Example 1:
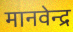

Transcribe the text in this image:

मानवेन्द्र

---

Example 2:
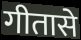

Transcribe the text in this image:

गीतासे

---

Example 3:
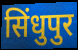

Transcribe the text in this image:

सिंधुपुर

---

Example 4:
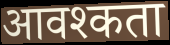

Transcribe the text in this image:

आवश्कता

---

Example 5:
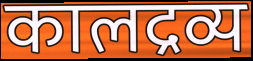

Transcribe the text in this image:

कालद्रव्य